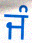
ਜੰ